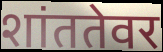
शांततेवर